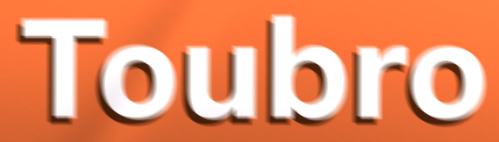
Toubro